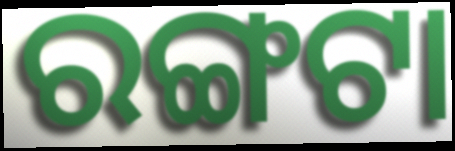
ରଙ୍ଗଟା